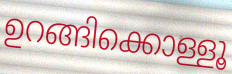
ഉറങ്ങിക്കൊള്ളൂ